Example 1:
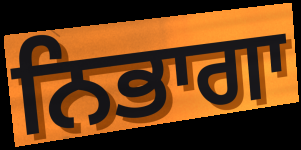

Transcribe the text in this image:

ਨਿਭਾਗਾ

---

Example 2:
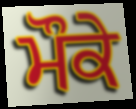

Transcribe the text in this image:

ਮੌਕੇ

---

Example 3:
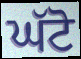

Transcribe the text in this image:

ਘੱਟੋ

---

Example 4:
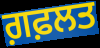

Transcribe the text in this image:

ਗ਼ਫ਼ਲਤ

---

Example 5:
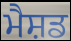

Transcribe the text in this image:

ਮੈਸ਼ਡ